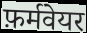
फ़र्मवेयर